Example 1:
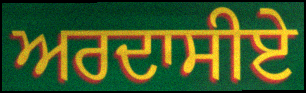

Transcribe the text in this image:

ਅਰਦਾਸੀਏ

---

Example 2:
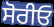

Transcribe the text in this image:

ਸੋਰੀਓ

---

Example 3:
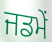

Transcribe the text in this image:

ਜਡਮੇਂ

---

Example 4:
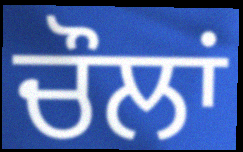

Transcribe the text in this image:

ਚੌਲਾਂ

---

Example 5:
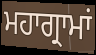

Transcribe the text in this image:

ਮਹਾਗ੍ਰਾਮਾਂ